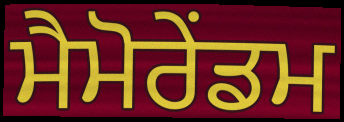
ਮੈਮੋਰੇਂਡਮ